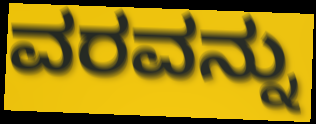
ವರವನ್ನು